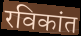
रविकांत